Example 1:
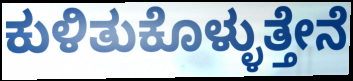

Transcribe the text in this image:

ಕುಳಿತುಕೊಳ್ಳುತ್ತೇನೆ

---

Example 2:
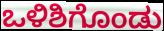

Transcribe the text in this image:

ಒಳಿಶಿಗೊಂಡು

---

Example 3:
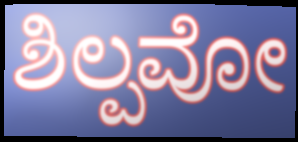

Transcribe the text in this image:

ಶಿಲ್ಪವೋ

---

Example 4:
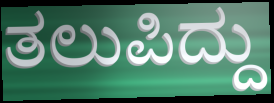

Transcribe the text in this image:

ತಲುಪಿದ್ದು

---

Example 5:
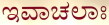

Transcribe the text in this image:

ಇವಾಚಲಾಃ